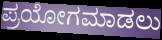
ಪ್ರಯೋಗಮಾಡಲು